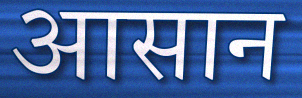
आसान